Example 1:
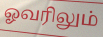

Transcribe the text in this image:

ஓவரிலும்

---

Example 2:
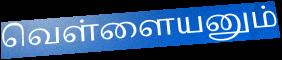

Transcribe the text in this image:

வெள்ளையனும்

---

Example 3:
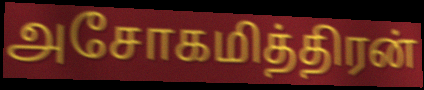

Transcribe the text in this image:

அசோகமித்திரன்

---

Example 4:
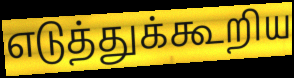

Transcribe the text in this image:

எடுத்துக்கூறிய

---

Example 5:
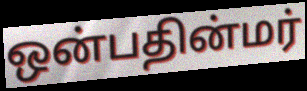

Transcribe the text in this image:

ஒன்பதின்மர்